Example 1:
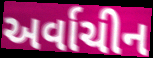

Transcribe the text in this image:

અર્વાચીન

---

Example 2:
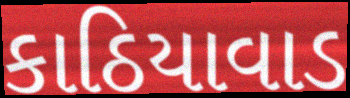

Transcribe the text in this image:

કાઠિયાવાડ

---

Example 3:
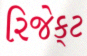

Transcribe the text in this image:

રિજેક્‌ટ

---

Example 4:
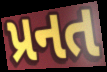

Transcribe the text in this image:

પ્રનત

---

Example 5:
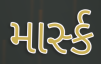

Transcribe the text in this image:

માર્સ્ક